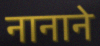
नानाने